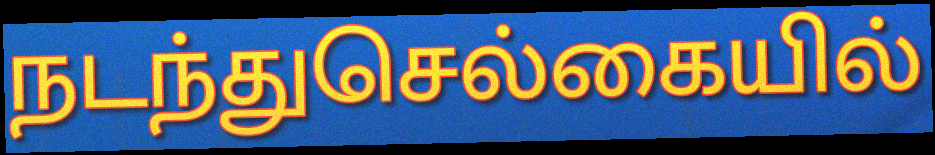
நடந்துசெல்கையில்